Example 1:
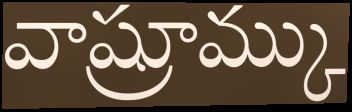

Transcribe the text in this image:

వాష్రూమ్కు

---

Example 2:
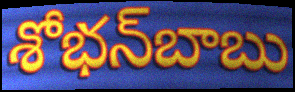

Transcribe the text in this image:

శోభన్‌బాబు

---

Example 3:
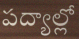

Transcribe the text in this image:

పద్యాల్లో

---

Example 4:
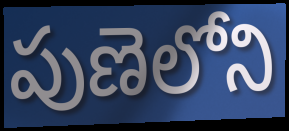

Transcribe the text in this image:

పుణెలోని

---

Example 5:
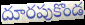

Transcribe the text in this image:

దూరపుకొండ